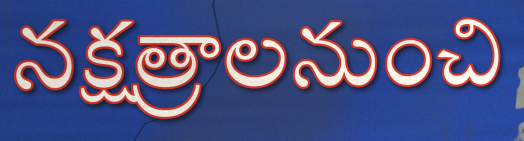
నక్షత్రాలనుంచి